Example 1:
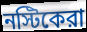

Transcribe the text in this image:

নস্টিকেরা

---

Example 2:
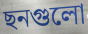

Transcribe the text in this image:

ছনগুলো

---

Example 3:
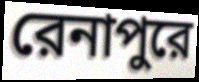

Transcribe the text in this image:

রেনাপুরে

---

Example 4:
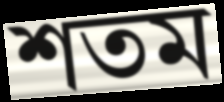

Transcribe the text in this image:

শতম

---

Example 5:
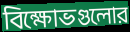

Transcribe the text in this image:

বিক্ষোভগুলোর